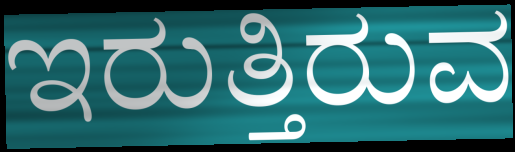
ಇರುತ್ತಿರುವ